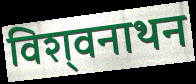
विश्वनाथन